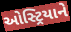
ઓસ્ટ્રિયાને